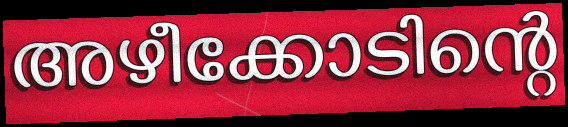
അഴീക്കോടിന്റെ